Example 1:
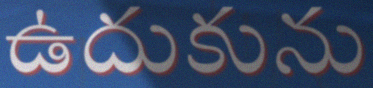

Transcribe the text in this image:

ఉదుకును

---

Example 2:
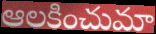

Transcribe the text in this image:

ఆలకించుమా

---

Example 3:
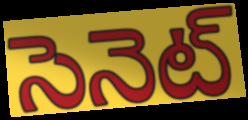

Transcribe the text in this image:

సెనెట్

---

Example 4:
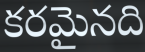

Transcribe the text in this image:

కరమైనది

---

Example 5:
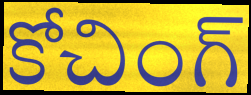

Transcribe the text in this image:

కోచింగ్